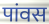
पांवस